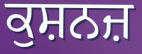
ਕੁਸ਼ਨਜ਼